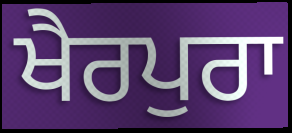
ਖੈਰਪੁਰਾ